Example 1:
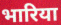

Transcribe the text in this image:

भारिया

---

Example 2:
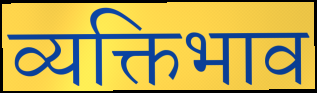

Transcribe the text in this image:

व्यक्तिभाव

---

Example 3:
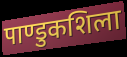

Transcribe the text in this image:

पाण्डुकशिला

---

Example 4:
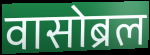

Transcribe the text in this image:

वासोब्रल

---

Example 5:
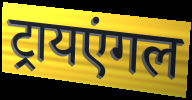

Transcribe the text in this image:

ट्रायएंगल